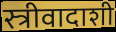
स्त्रीवादाशी